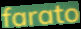
farato